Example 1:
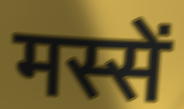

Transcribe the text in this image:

मस्सें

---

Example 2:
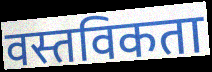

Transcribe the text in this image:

वस्तविकता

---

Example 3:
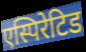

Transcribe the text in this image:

एस्पिरेटिड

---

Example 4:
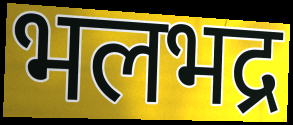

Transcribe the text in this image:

भलभद्र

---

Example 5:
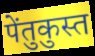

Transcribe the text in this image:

पेंतुकुस्त